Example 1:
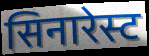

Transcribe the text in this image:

सिनारेस्ट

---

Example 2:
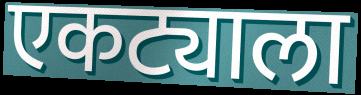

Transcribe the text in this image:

एकट्याला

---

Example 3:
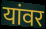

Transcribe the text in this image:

यांवर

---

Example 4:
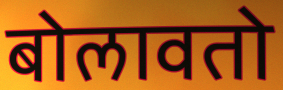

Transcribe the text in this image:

बोलावतो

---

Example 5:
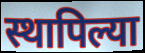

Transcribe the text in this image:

स्थापिल्या